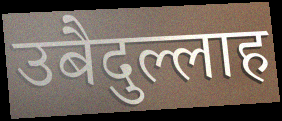
उबैदुल्लाह